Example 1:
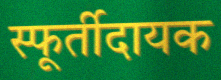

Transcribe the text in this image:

स्फूर्तीदायक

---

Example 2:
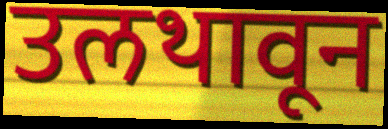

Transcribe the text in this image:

उलथावून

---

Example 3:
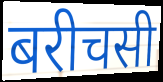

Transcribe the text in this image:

बरीचसी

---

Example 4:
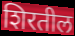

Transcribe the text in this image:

शिरतील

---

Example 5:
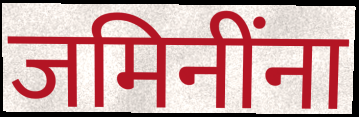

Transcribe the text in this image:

जमिनींना